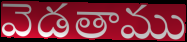
వెడతాము